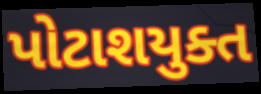
પોટાશયુક્ત